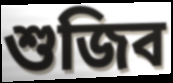
শুজিব